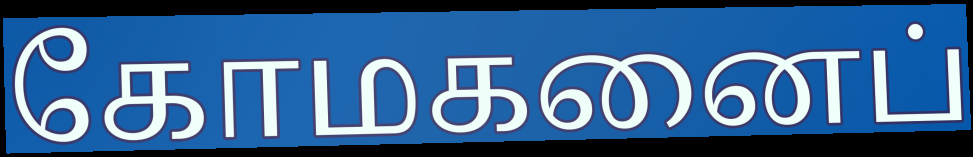
கோமகனைப்